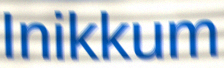
Inikkum